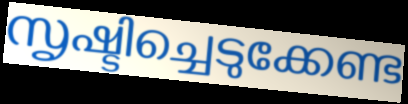
സൃഷ്ടിച്ചെടുക്കേണ്ട